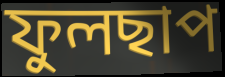
ফুলছাপ